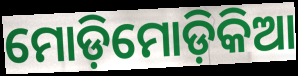
ମୋଡ଼ିମୋଡ଼ିକିଆ